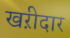
खऱीदार